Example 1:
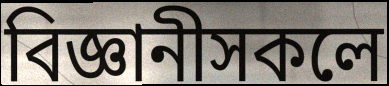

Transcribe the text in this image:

বিজ্ঞানীসকলে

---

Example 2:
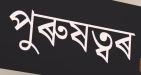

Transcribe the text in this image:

পুৰুষত্বৰ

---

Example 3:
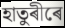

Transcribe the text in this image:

হাতুৰীৰে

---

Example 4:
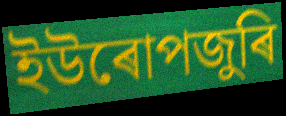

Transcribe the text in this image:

ইউৰোপজুৰি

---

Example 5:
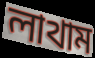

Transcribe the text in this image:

লাথাম